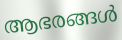
ആഭരങ്ങൾ